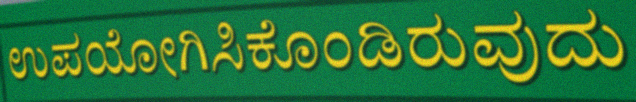
ಉಪಯೋಗಿಸಿಕೊಂಡಿರುವುದು